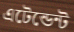
এটেন্ডেন্ট